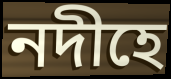
নদীহে